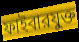
ফাইবারযুক্ত